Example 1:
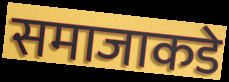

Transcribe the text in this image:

समाजाकडे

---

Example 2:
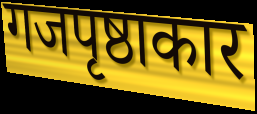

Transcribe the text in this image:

गजपृष्ठाकार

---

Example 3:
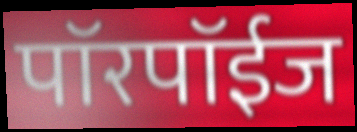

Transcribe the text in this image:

पॉरपॉईज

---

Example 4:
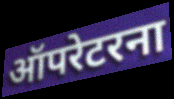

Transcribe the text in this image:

ऑपरेटरना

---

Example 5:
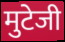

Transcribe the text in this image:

मुटेजी